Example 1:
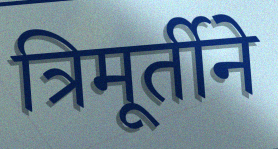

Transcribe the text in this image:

त्रिमूर्तीने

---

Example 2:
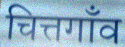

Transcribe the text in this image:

चित्तगाँव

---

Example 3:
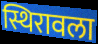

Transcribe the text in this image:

स्थिरावला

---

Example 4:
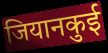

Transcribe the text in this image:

जियानकुई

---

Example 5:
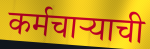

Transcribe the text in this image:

कर्मचाऱ्याची